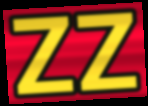
ZZ